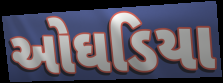
ઓઘડિયા